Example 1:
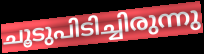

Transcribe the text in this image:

ചൂടുപിടിച്ചിരുന്നു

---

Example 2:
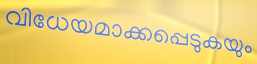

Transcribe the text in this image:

വിധേയമാക്കപ്പെടുകയും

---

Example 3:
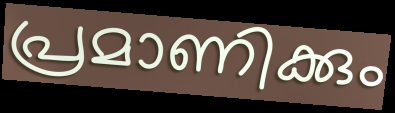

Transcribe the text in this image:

പ്രമാണിക്കും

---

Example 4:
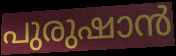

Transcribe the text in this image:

പുരുഷാൻ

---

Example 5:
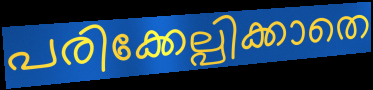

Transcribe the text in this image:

പരിക്കേല്പിക്കാതെ